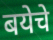
बयेचे